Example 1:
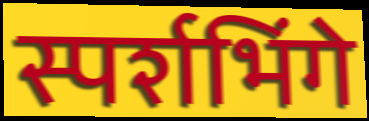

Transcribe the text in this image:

स्पर्शभिंगे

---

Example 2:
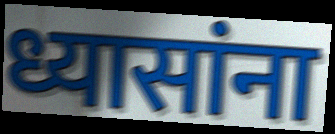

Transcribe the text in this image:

ध्यासांना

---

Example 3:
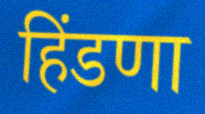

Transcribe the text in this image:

हिंडणा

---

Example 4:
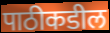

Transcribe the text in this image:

पाठीकडील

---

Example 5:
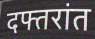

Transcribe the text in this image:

दफ्तरांत